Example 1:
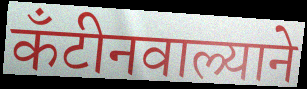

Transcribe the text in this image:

कँटीनवाल्याने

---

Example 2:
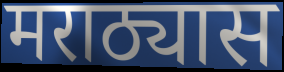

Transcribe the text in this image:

मराठ्यास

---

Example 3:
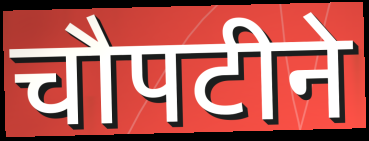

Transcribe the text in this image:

चौपटीने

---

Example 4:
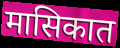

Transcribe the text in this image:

मासिकात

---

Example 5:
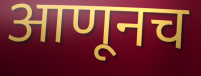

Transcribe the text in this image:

आणूनच